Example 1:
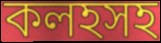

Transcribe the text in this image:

কলহসহ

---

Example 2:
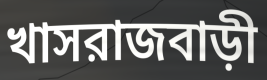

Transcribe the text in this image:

খাসরাজবাড়ী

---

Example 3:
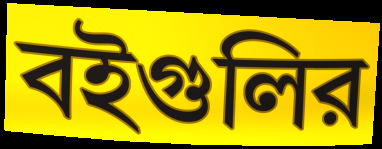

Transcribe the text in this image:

বইগুলির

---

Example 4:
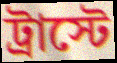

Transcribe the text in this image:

ট্রাস্টে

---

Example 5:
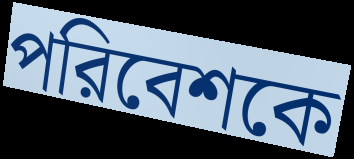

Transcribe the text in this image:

পরিবেশকে